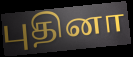
புதினா